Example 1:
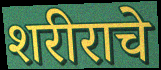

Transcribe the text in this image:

शरीराचे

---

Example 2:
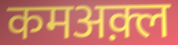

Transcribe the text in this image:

कमअक़्ल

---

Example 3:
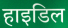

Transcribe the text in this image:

हाइडिल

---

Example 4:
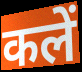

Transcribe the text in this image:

कलें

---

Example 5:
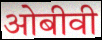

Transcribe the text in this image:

ओबीवी